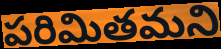
పరిమితమని